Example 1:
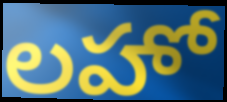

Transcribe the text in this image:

లహో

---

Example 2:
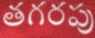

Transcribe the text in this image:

తగరపు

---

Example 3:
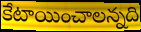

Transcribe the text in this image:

కేటాయించాలన్నది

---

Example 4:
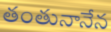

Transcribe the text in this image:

తంతునానేన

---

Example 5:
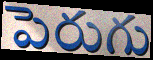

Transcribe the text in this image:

పెరుగు